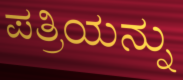
ಪತ್ರಿಯನ್ನು